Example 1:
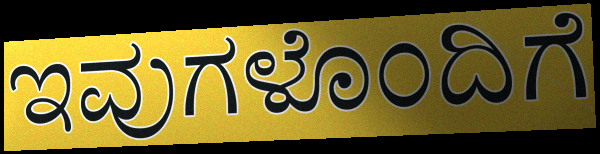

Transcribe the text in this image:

ಇವುಗಳೊಂದಿಗೆ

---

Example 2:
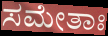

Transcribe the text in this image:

ಸಮೇತಾಃ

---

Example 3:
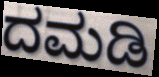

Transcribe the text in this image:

ದಮಡಿ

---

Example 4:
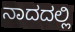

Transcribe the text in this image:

ನಾದದಲ್ಲಿ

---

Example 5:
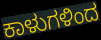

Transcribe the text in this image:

ಕಾಳುಗಳಿಂದ